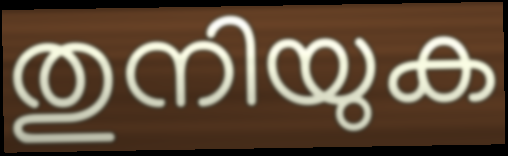
തുനിയുക